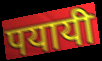
पयायी